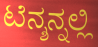
ಟೆನ್ಶನ್ನಲ್ಲಿ